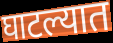
घाटल्यात